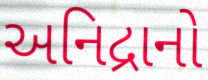
અનિદ્રાનો